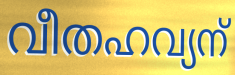
വീതഹവ്യന്